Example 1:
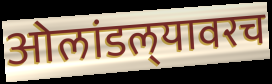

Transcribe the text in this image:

ओलांडल्यावरच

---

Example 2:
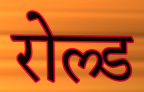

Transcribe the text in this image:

रोल्ड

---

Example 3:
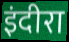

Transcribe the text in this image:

इंदीरा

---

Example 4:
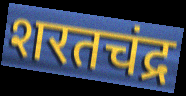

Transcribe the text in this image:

शरतचंद्र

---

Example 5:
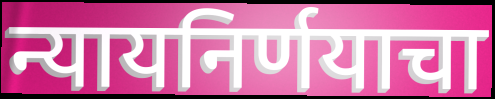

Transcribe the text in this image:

न्यायनिर्णयाचा